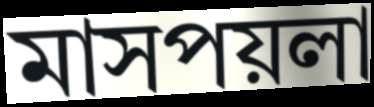
মাসপয়লা